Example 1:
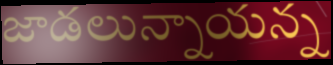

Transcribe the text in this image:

జాడలున్నాయన్న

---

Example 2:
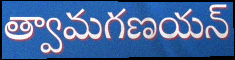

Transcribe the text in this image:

త్వామగణయన్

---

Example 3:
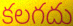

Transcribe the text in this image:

కలగదు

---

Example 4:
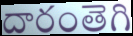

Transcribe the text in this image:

దారంతెగి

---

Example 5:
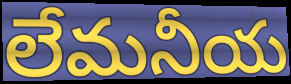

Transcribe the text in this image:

లేమనీయ